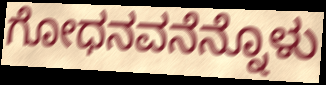
ಗೋಧನವನೆನ್ನೊಳು